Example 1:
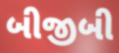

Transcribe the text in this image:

બીજીબી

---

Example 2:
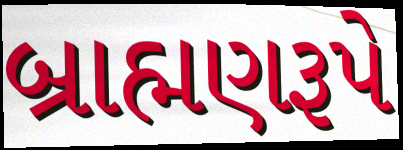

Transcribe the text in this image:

બ્રાહ્મણરૂપે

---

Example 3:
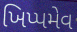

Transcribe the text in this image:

ખિપ્પમેવ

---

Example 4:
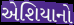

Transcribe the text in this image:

એશિયાનો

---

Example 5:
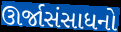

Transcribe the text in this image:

ઊર્જાસંસાધનો